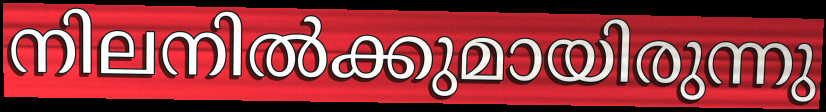
നിലനിൽക്കുമായിരുന്നു